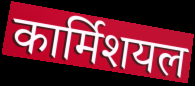
कार्मिशयल